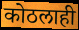
कोठलाही